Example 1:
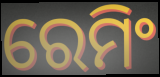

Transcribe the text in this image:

ରେମିଂ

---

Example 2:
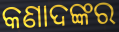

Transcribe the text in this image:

କଣାଦଙ୍କର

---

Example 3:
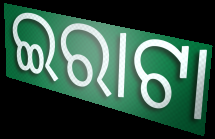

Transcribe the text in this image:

ଇରାଟା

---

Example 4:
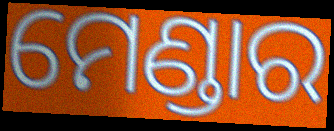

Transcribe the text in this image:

ମେଣ୍ଡାର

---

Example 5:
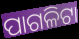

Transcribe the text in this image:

ପାଗଳିଟା